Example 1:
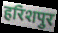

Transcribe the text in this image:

हरिशपुर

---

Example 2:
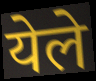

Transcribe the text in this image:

येले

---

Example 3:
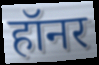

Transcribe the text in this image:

हॉनर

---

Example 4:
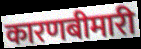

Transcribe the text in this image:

कारणबीमारी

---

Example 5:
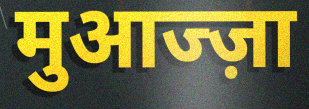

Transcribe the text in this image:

मुआज्ज़ा